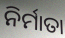
ନିର୍ମାତା